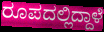
ರೂಪದಲ್ಲಿದ್ದಾಳೆ